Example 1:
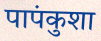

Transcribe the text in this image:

पापंकुशा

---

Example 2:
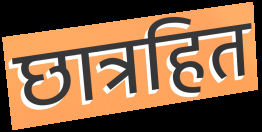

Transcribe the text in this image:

छात्रहित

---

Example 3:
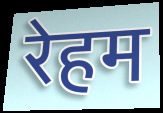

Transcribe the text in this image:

रेहम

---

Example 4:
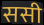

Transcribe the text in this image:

ससी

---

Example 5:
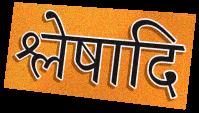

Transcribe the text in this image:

श्लेषादि